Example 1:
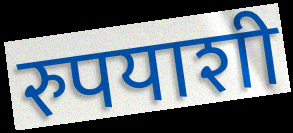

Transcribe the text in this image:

रुपयाशी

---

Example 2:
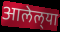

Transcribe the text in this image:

आलेल्या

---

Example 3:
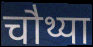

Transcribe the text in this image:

चौथ्या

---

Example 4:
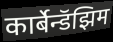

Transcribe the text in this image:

कार्बेन्डॅझिम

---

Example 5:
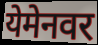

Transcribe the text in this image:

येमेनवर